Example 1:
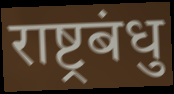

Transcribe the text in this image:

राष्ट्रबंधु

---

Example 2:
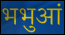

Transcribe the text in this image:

भभुआं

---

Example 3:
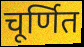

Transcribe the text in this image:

चूर्णित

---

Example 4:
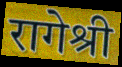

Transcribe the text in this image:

रागेश्री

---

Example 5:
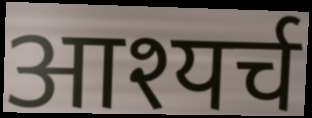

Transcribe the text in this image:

आश्यर्च